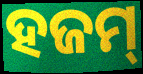
ହଜମ୍